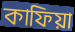
কাফিয়া